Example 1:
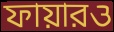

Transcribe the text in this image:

ফায়ারও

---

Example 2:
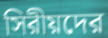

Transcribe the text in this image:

সিরীয়দের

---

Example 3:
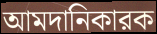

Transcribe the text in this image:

আমদানিকারক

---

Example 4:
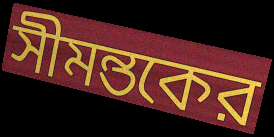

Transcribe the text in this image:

সীমন্তকের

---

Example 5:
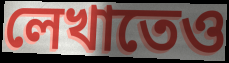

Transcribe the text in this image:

লেখাতেও